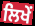
ਲਿਖੇਂ